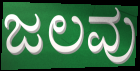
ಜಲವು